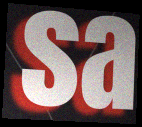
sa